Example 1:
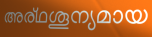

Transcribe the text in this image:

അര്ഥശൂന്യമായ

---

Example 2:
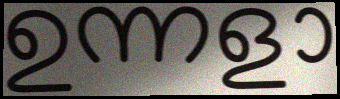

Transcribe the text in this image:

ഉന്നളാ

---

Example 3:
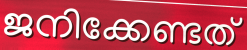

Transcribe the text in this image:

ജനിക്കേണ്ടത്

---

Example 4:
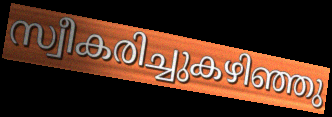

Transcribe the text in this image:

സ്വീകരിച്ചുകഴിഞ്ഞു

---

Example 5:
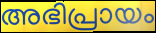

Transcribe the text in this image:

അഭിപ്രായം